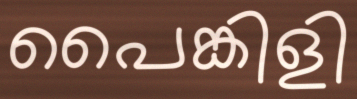
പൈങ്കിളി